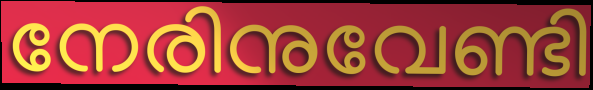
നേരിനുവേണ്ടി